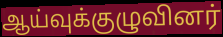
ஆய்வுக்குழுவினர்